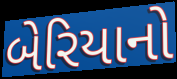
બેરિયાનો